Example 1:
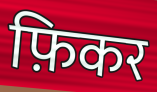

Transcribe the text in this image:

फ़िकर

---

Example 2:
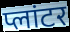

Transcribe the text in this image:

प्लांटर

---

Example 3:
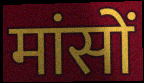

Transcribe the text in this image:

मांसों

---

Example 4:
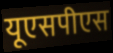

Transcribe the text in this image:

यूएसपीएस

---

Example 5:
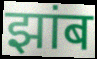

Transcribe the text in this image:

झांब